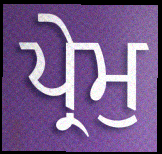
ਪ੍ਰੇਮੁ